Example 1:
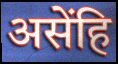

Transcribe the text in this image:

असेंहि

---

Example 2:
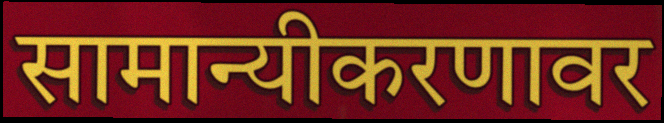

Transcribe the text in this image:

सामान्यीकरणावर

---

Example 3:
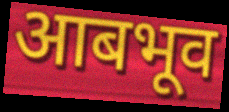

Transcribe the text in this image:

आबभूव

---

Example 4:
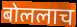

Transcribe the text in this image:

बोललाच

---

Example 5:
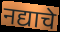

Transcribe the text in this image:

नद्याचे